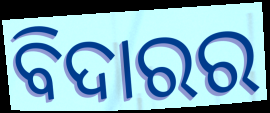
ବିଦାରର